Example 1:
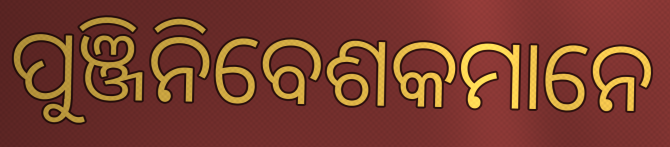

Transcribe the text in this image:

ପୁଞ୍ଜିନିବେଶକମାନେ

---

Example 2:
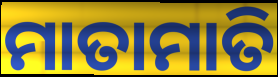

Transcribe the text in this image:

ମାତାମାତି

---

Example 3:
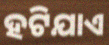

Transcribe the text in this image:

ହଟିଯାଏ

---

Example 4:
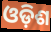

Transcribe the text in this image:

ଓଡ଼ିଶ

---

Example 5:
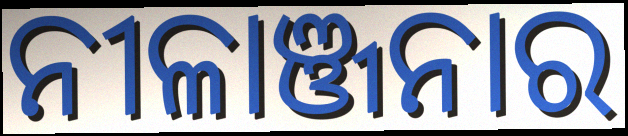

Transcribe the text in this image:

ନୀଳାଞ୍ଜନାର